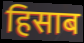
हिसाब